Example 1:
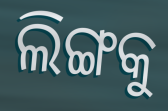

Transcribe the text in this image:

ଲିଙ୍ଗକୁ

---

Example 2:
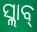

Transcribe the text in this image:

ସ୍ଲାବ୍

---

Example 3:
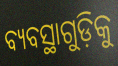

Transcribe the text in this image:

ବ୍ୟବସ୍ଥାଗୁଡ଼ିକୁ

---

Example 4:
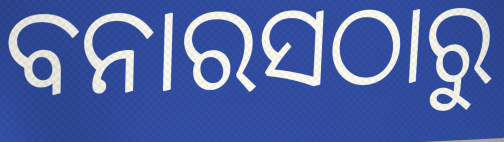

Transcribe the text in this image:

ବନାରସଠାରୁ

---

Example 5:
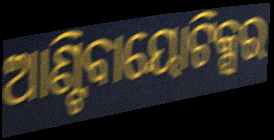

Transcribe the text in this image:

ଆଣ୍ଟିବାୟୋଟିକ୍ସର